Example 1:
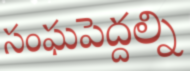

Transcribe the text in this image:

సంఘపెద్దల్ని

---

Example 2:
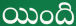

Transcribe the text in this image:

యింది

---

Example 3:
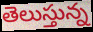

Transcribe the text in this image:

తెలుస్తున్న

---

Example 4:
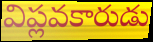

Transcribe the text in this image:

విప్లవకారుడు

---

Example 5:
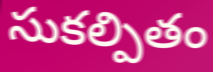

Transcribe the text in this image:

సుకల్పితం